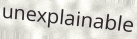
unexplainable